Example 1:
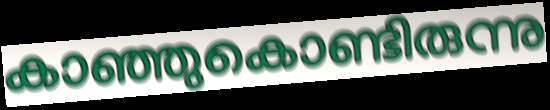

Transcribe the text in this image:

കാഞ്ഞുകൊണ്ടിരുന്നു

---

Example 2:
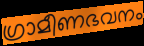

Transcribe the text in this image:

ഗ്രാമീണഭവനം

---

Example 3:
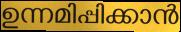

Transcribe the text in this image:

ഉന്നമിപ്പിക്കാൻ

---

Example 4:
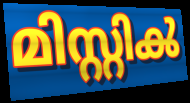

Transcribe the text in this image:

മിസ്റ്റിൿ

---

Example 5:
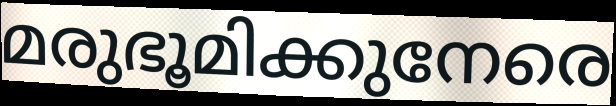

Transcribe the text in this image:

മരുഭൂമിക്കുനേരെ